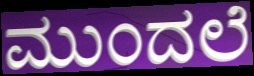
ಮುಂದಲೆ